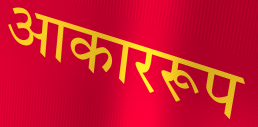
आकाररूप